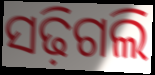
ସଢ଼ିଗଲି